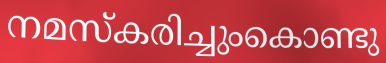
നമസ്കരിച്ചുംകൊണ്ടു